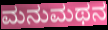
ಮನುಮಥನ